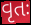
વૃતઃ